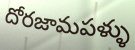
దోరజామపళ్ళు